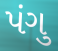
પંગુ